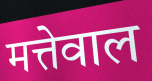
मत्तेवाल